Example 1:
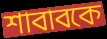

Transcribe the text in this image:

শাবাবকে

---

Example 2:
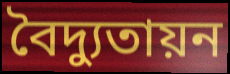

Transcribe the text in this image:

বৈদ্যুতায়ন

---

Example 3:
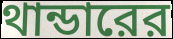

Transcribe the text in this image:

থান্ডারের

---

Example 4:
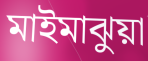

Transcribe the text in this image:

মাইমাঝুয়া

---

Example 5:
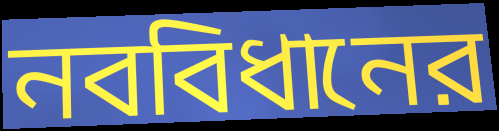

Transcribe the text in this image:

নববিধানের